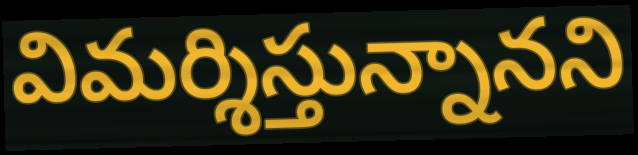
విమర్శిస్తున్నానని